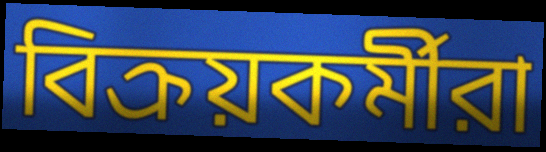
বিক্রয়কর্মীরা